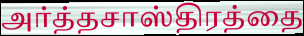
அர்த்தசாஸ்திரத்தை